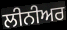
ਲੀਨੀਅਰ